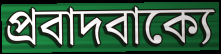
প্রবাদবাক্যে